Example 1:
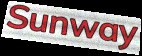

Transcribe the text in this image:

Sunway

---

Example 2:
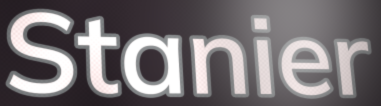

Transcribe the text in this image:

Stanier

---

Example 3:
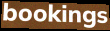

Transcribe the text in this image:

bookings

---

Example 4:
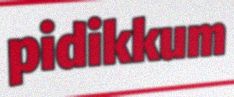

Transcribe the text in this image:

pidikkum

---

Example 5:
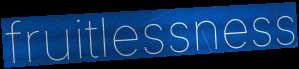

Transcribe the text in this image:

fruitlessness